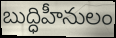
బుద్ధిహీనులం